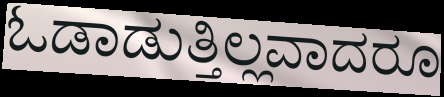
ಓಡಾಡುತ್ತಿಲ್ಲವಾದರೂ